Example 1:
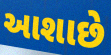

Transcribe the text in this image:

આશાછે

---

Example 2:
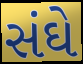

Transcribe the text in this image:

સંઘે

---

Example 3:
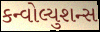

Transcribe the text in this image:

કન્વોલ્યુશન્સ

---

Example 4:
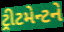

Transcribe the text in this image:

ટ્રીટમેન્ટને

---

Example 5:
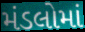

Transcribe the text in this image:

મંડલોમાં